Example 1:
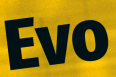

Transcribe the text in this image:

Evo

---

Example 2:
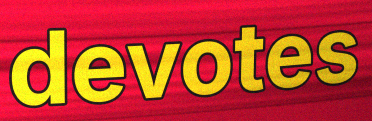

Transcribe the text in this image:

devotes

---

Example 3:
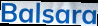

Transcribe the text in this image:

Balsara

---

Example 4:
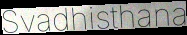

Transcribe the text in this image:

Svadhisthana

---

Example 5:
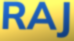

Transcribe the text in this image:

RAJ